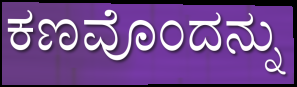
ಕಣವೊಂದನ್ನು